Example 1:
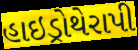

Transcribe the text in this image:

હાઇડ્રોથેરાપી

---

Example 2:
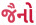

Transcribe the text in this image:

જૈનો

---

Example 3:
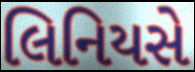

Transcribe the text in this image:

લિનિયસે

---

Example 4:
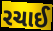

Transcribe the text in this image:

રચાઈ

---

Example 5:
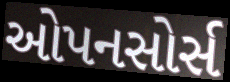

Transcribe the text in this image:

ઓપનસોર્સ